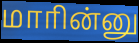
மாரின்னு